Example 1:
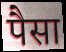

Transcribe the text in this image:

पैसा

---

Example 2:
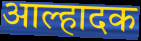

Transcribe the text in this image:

आल्हादक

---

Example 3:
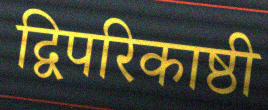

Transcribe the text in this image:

द्विपरिकाष्ठी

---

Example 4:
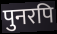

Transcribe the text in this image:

पुनरपि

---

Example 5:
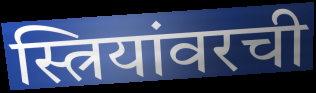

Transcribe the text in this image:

स्त्रियांवरची